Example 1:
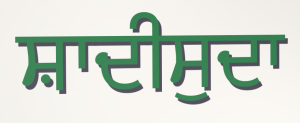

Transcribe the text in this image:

ਸ਼ਾਦੀਸੁਦਾ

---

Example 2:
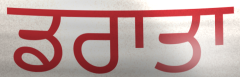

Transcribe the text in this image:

ਡਰਾਤਾ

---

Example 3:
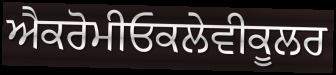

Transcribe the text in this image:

ਐਕਰੋਮੀਓਕਲੇਵੀਕੂਲਰ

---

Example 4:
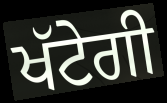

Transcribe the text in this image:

ਖੱਟੇਗੀ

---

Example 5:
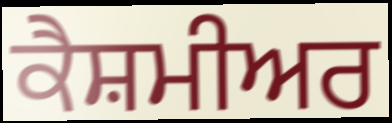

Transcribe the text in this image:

ਕੈਸ਼ਮੀਅਰ